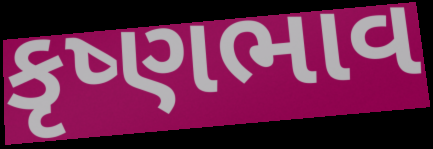
કૃષ્ણભાવ